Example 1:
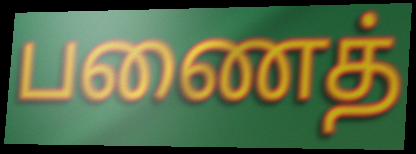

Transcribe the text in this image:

பணைத்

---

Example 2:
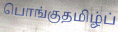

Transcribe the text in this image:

பொங்குதமிழ்ப்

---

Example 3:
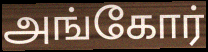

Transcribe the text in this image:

அங்கோர்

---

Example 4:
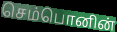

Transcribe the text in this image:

செம்பொனின்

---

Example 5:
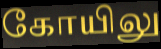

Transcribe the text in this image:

கோயிலு